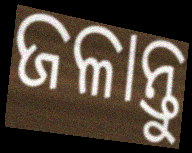
ଜଳାନ୍ତୁ